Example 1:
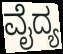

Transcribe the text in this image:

ವೈದ್ಯ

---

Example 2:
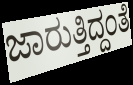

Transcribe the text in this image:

ಜಾರುತ್ತಿದ್ದಂತೆ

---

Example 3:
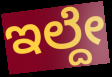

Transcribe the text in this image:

ಇಲ್ದೇ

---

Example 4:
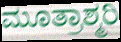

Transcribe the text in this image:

ಮೂತ್ರಾಶ್ಮರಿ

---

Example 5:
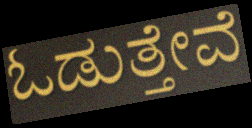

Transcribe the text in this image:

ಓಡುತ್ತೇವೆ